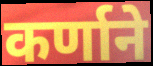
कर्णाने